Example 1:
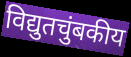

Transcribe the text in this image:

विद्युतचुंबकीय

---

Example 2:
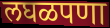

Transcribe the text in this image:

लघळपणा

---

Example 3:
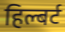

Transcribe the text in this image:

हिल्बर्ट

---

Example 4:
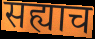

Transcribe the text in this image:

सह्याच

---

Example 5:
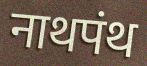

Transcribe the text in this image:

नाथपंथ